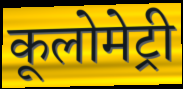
कूलोमेट्री